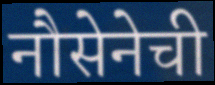
नौसेनेची